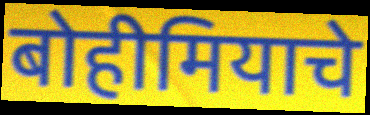
बोहीमियाचे